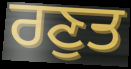
ਰਣੁਤ